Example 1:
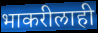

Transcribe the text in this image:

भाकरीलाही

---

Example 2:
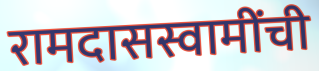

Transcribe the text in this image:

रामदासस्वामींची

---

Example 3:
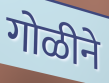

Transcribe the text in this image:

गोळीने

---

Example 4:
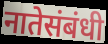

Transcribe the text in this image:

नातेसंबंधी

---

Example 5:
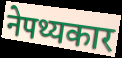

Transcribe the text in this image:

नेपथ्यकार